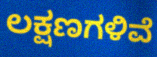
ಲಕ್ಷಣಗಳಿವೆ